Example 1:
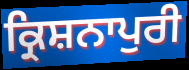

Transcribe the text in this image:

ਕ੍ਰਿਸ਼ਨਾਪੁਰੀ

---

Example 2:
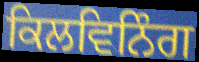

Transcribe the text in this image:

ਕਿਲਵਿਨਿੰਗ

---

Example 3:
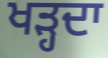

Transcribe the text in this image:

ਖੜ੍ਹਦਾ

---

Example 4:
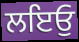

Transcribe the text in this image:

ਲਇਓੁ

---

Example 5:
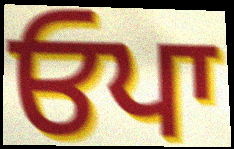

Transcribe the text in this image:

ਓਪਾ